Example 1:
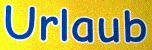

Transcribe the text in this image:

Urlaub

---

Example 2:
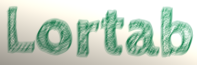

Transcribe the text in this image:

Lortab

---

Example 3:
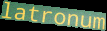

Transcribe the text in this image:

latronum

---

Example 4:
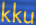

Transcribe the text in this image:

kku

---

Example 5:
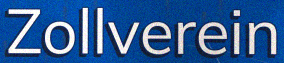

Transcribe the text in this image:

Zollverein